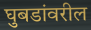
घुबडांवरील